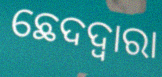
ଛେଦଦ୍ୱାରା